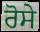
ਰੋਸੇ